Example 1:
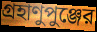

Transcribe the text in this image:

গ্রহাণুপুঞ্জের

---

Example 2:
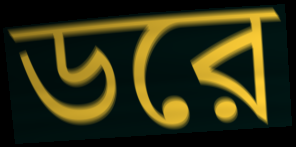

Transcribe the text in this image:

ডরে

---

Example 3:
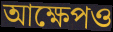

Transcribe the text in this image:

আক্ষেপও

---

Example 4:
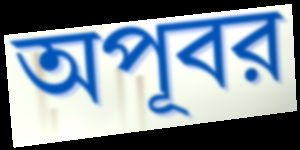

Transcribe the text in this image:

অপূবর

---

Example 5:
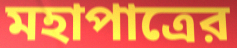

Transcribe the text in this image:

মহাপাত্রের